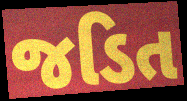
જડિત